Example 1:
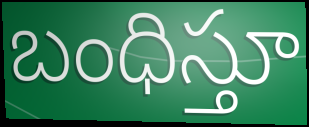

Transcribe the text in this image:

బంధిస్తూ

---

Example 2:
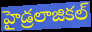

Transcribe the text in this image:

హైడ్రలాజికల్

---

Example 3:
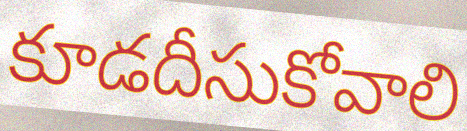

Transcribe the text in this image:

కూడదీసుకోవాలి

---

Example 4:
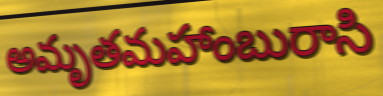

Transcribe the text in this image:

అమృతమహాంబురాసి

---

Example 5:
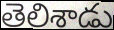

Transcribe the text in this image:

తెలిశాడు